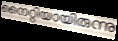
നൈറ്റിയായിരുന്നു